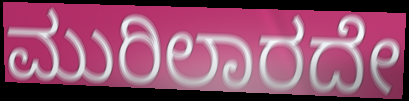
ಮುರಿಲಾರದೇ